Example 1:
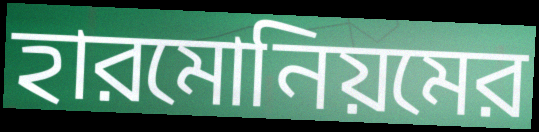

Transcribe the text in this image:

হারমোনিয়মের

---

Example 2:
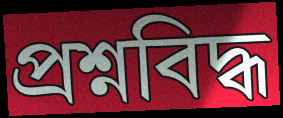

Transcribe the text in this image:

প্রশ্নবিদ্ধ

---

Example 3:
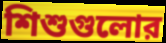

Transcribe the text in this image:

শিশুগুলোর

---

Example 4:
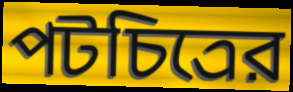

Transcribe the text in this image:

পটচিত্রের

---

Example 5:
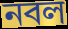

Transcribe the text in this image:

নবল